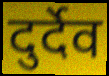
दुर्देव